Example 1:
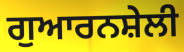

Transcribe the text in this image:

ਗੁਆਰਨਸ਼ੇਲੀ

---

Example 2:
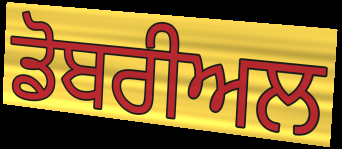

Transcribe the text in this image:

ਡੋਬਰੀਅਲ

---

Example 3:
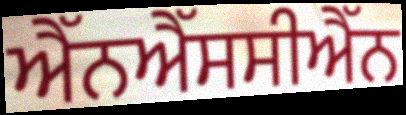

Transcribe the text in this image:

ਐੱਨਐੱਸਸੀਐੱਨ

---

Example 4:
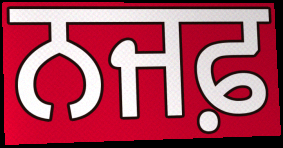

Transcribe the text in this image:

ਨਜਫ਼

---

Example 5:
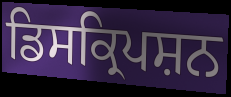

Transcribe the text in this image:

ਡਿਸਕ੍ਰਿਪਸ਼ਨ